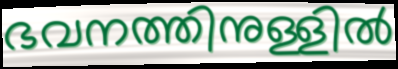
ഭവനത്തിനുള്ളിൽ